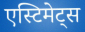
एस्टिमेट्स